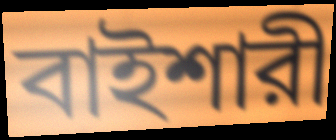
বাইশারী